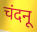
चंदनू